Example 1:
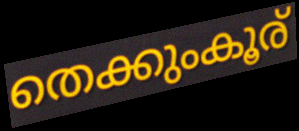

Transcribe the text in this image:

തെക്കുംകൂര്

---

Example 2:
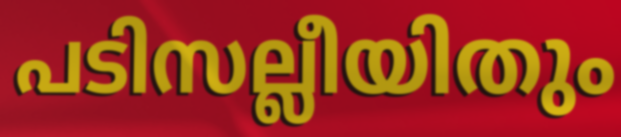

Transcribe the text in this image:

പടിസല്ലീയിതും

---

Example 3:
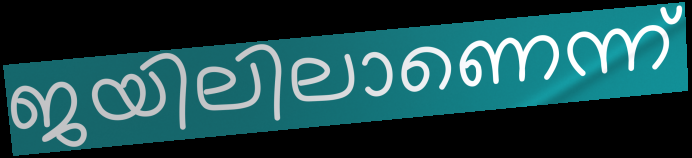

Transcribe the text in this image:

ജയിലിലാണെന്ന്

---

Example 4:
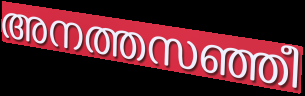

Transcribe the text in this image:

അനത്തസഞ്ഞീ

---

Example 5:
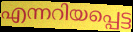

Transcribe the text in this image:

എന്നറിയപ്പെട്ട